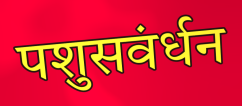
पशुसवंर्धन